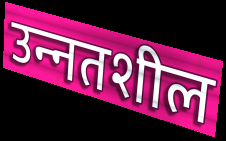
उन्नतशील